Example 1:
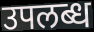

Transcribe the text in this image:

उपलब्ध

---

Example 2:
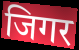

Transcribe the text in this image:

जिगर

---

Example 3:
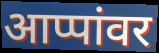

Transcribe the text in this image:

आप्पांवर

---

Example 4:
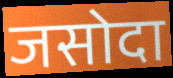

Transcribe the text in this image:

जसोदा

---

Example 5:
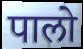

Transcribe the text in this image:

पालो